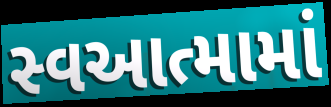
સ્વઆત્મામાં